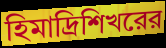
হিমাদ্রিশিখরের